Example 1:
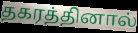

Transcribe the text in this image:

தகரத்தினால்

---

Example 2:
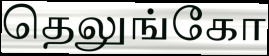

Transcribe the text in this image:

தெலுங்கோ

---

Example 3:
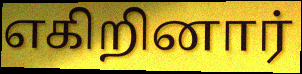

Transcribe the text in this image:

எகிறினார்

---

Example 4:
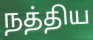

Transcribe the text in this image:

நத்திய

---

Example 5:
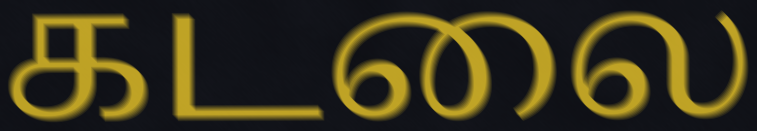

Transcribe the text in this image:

கடலை